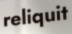
reliquit